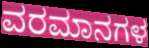
ವರಮಾನಗಳ